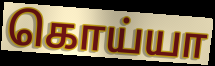
கொய்யா